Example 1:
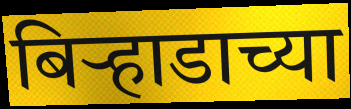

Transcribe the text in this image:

बिऱ्हाडाच्या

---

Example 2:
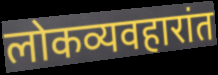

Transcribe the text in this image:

लोकव्यवहारांत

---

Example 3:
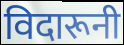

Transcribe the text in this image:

विदारूनी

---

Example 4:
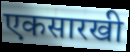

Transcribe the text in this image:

एकसारखी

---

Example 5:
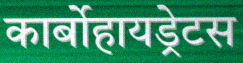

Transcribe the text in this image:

कार्बोहायड्रेटस